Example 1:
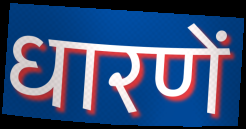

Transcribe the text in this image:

धारणें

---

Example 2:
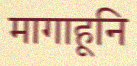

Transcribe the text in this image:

मागाहूनि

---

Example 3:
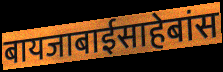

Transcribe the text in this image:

बायजाबाईसाहेबांस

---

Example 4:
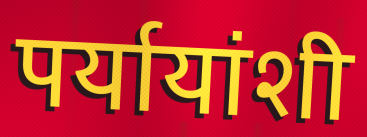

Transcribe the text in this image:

पर्यायांशी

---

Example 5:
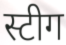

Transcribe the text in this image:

स्टीग